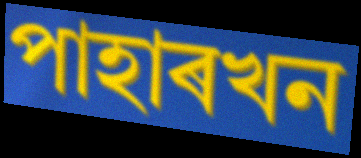
পাহাৰখন